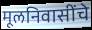
मूलनिवासींचे